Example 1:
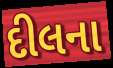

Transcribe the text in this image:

દીલના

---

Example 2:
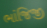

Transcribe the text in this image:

ભાંજિજી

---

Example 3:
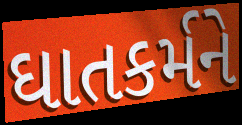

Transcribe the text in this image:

ઘાતકર્મને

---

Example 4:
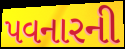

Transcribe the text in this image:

પવનારની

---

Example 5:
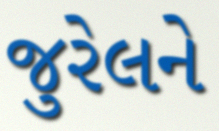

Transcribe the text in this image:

જુરેલને